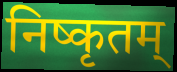
निष्कृतम्